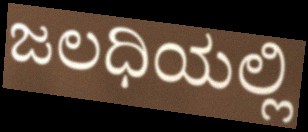
ಜಲಧಿಯಲ್ಲಿ